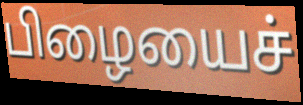
பிழையைச்